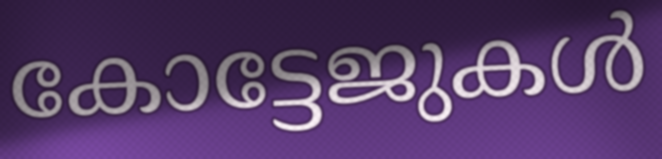
കോട്ടേജുകൾ